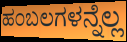
ಹಂಬಲಗಳನ್ನೆಲ್ಲ